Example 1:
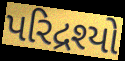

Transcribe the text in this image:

પરિદ્રશ્યો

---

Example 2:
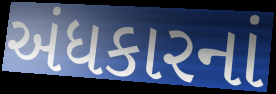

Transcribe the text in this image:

અંધકારનાં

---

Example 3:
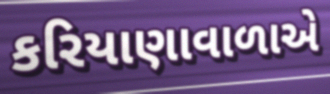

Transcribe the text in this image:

કરિયાણાવાળાએ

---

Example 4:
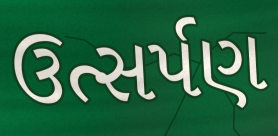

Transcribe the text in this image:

ઉત્સર્પણ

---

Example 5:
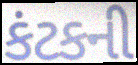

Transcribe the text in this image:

કંટકની